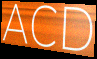
ACD